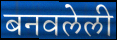
बनवलेली